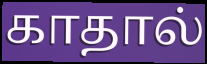
காதால்